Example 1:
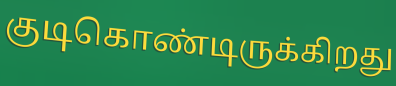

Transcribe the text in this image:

குடிகொண்டிருக்கிறது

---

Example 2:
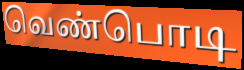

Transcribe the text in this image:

வெண்பொடி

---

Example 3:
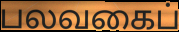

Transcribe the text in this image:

பலவகைப்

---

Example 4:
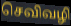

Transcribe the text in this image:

செவிவழி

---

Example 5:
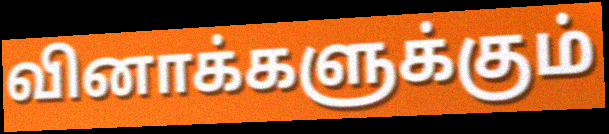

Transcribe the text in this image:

வினாக்களுக்கும்